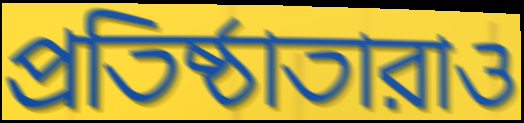
প্রতিষ্ঠাতারাও